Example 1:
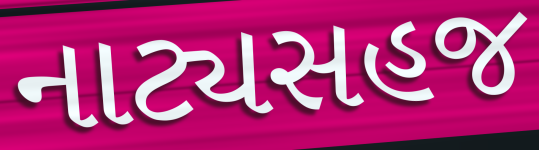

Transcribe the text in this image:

નાટ્યસહજ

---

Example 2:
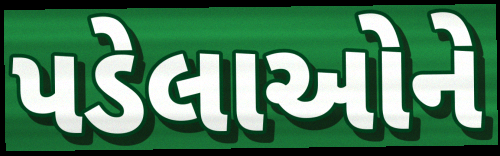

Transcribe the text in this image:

પડેલાઓને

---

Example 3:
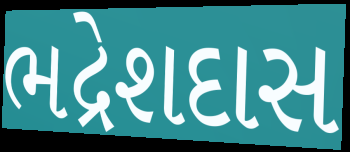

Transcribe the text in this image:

ભદ્રેશદાસ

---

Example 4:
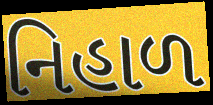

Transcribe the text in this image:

નિહાળ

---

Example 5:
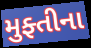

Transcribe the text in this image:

મુફ્તીના